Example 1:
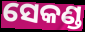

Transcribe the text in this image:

ସେକଣ୍ଡ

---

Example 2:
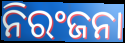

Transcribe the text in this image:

ନିରଂଜନା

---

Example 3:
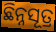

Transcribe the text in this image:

ଛିନ୍ନସୂତ୍ର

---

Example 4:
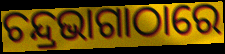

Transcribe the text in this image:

ଚନ୍ଦ୍ରଭାଗାଠାରେ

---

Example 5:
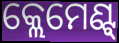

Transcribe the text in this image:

କ୍ଲେମେଣ୍ଟ୍